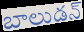
బాలుడన్